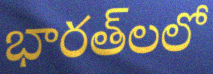
భారత్‌లలో